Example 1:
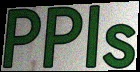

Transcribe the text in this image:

PPIs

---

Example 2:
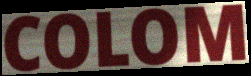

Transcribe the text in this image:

COLOM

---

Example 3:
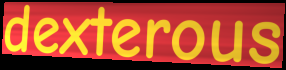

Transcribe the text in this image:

dexterous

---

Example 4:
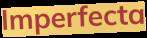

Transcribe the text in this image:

Imperfecta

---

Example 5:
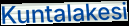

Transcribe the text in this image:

Kuntalakesi